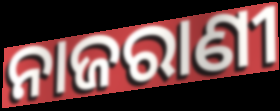
ନାଜରାଣୀ